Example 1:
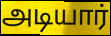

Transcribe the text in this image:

அடியார்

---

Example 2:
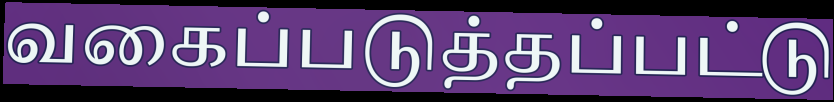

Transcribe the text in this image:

வகைப்படுத்தப்பட்டு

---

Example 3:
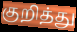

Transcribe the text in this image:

குறித்து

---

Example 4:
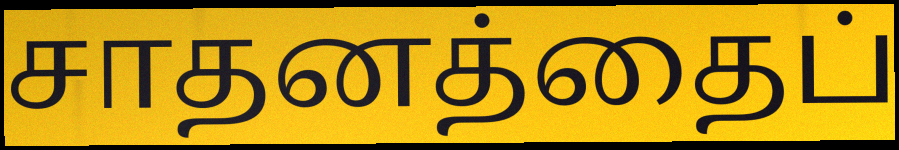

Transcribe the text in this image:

சாதனத்தைப்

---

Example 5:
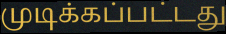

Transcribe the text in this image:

முடிக்கப்பட்டது